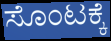
ಸೊಂಟಕ್ಕೆ